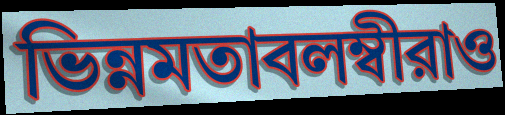
ভিন্নমতাবলম্বীরাও